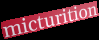
micturition